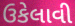
ઉકેલાવી